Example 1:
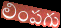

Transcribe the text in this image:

లింపగు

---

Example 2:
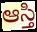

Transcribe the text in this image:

ఆస్తి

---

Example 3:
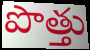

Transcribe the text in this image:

పొత్తు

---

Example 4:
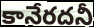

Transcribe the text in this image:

కానేరదనీ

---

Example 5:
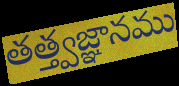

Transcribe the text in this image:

తత్త్వజ్ఞానము